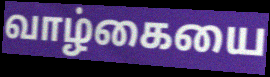
வாழ்கையை